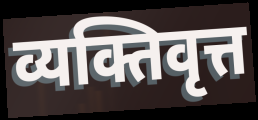
व्यक्तिवृत्त